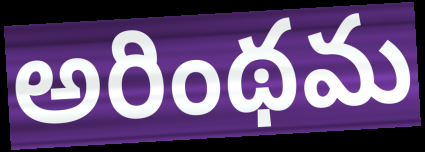
అరింథమ